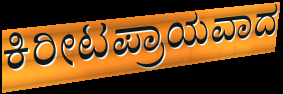
ಕಿರೀಟಪ್ರಾಯವಾದ